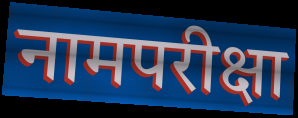
नामपरीक्षा